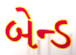
બેન્ડ